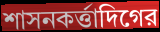
শাসনকর্ত্তাদিগের